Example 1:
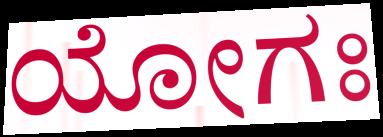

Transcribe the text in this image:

ಯೋಗಃ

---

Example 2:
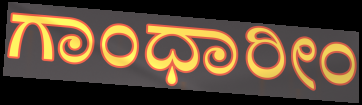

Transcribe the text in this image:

ಗಾಂಧಾರೀಂ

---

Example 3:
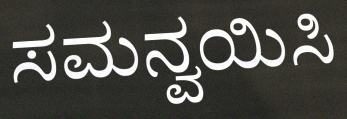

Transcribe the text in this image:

ಸಮನ್ವಯಿಸಿ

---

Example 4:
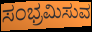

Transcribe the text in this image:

ಸಂಭ್ರಮಿಸುವ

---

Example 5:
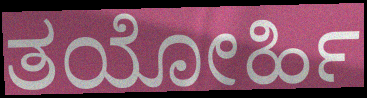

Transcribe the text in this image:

ತಯೋರ್ಹಿ